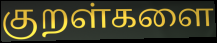
குறள்களை